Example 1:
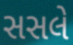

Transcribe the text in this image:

સસલે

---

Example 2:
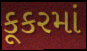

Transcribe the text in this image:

કૂકરમાં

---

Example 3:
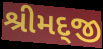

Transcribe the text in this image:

શ્રીમદ્જી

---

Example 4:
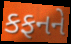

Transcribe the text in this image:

કફનને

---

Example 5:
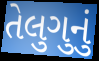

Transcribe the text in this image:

તેલુગુનું